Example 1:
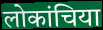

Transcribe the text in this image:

लोकांचिया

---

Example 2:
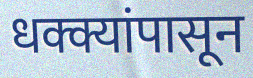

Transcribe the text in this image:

धक्क्यांपासून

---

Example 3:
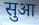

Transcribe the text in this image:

सुआ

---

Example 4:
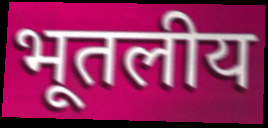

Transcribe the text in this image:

भूतलीय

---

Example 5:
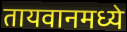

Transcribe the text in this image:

तायवानमध्ये